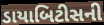
ડાયાબિટીસની